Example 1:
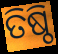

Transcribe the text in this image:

ତିଷ୍ଠି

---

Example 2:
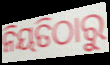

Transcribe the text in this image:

ନିୟତିଠାରୁ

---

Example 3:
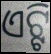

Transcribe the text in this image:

ଏଟ୍ଟି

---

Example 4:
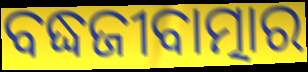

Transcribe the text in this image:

ବଦ୍ଧଜୀବାତ୍ମାର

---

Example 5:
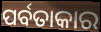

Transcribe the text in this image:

ପର୍ବତାକାର